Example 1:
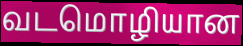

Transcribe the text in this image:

வடமொழியான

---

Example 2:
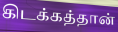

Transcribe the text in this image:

கிடக்கத்தான்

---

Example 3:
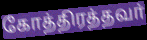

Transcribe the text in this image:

கோத்திரத்தவர்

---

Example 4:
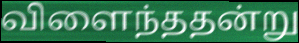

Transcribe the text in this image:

விளைந்ததன்று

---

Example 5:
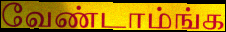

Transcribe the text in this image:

வேண்டாம்ங்க